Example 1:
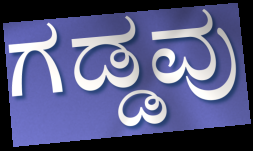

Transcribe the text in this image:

ಗಡ್ಡವು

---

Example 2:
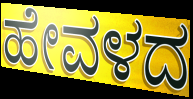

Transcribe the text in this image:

ಹೇವಳದ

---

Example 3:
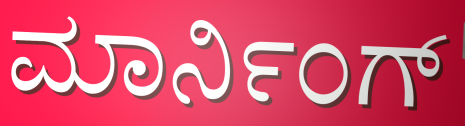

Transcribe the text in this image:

ಮಾರ್ನಿಂಗ್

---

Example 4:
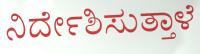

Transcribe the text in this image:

ನಿರ್ದೇಶಿಸುತ್ತಾಳೆ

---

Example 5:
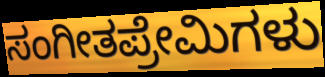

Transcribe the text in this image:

ಸಂಗೀತಪ್ರೇಮಿಗಳು